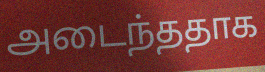
அடைந்ததாக